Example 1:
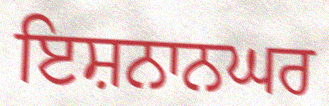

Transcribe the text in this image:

ਇਸ਼ਨਾਨਘਰ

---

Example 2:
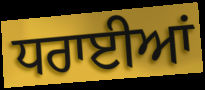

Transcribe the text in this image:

ਧਰਾਈਆਂ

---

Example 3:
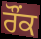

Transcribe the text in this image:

ਰੌਂਕ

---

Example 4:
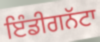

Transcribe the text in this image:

ਇੰਡੀਗਨੱਟਾ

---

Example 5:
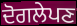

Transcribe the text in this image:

ਦੋਗਲੇਪਣ